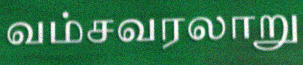
வம்சவரலாறு